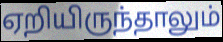
ஏறியிருந்தாலும்